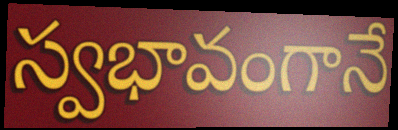
స్వభావంగానే